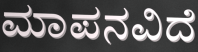
ಮಾಪನವಿದೆ